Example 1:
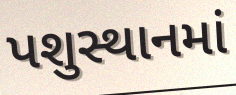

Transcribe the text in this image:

પશુસ્થાનમાં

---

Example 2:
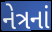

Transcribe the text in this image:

નેત્રનાં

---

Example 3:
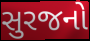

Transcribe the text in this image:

સુરજનો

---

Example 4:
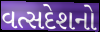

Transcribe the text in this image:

વત્સદેશનો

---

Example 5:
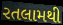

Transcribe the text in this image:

રતલામથી